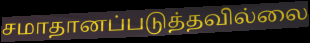
சமாதானப்படுத்தவில்லை